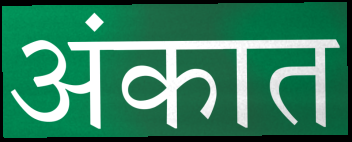
अंकात